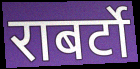
राबर्टो